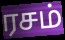
ரசம்